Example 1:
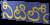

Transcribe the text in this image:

నీటిలోఁ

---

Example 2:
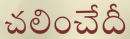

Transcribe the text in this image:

చలించేదీ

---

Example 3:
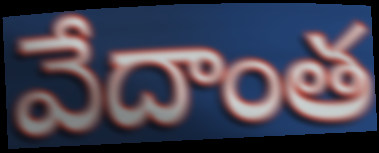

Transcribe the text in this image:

వేదాంత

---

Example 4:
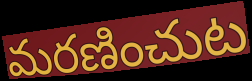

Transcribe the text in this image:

మరణించుట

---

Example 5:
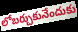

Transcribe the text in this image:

లోబర్చుకునేందుకు